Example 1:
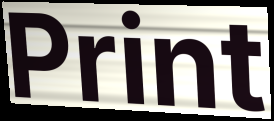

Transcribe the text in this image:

Print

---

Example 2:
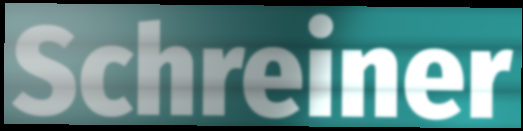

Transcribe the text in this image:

Schreiner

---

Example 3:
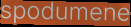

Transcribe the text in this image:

spodumene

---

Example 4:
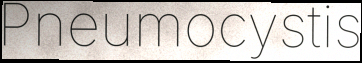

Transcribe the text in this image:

Pneumocystis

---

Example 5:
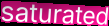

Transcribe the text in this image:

saturated